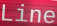
Line